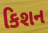
કિશન